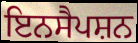
ਇਨਸੈਪਸ਼ਨ